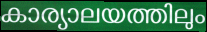
കാര്യാലയത്തിലും